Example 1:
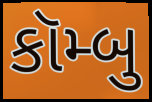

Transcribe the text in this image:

કૉમ્બુ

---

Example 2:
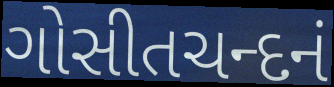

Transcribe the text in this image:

ગોસીતચન્દનં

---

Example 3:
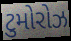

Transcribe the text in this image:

ટુમોરોઝ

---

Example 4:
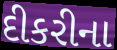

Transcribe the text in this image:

દીકરીના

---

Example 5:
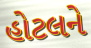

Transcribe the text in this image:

હોટલને